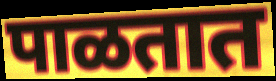
पाळतात